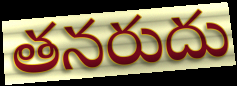
తనరుదు